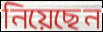
নিয়েছেন